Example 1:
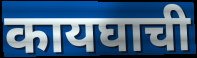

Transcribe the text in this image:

कायघाची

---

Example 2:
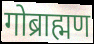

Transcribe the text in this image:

गोब्राह्मण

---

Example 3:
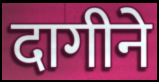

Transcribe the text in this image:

दागीने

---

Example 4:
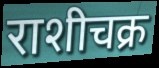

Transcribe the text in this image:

राशीचक्र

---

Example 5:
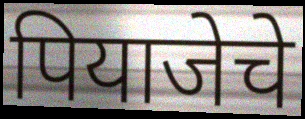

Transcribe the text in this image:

पियाजेचे